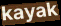
kayak